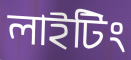
লাইটিং